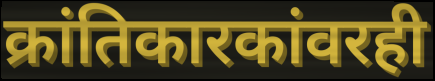
क्रांतिकारकांवरही